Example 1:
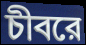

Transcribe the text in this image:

চীবরে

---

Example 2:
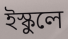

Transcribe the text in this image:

ইস্কুলে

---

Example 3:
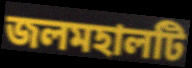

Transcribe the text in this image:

জলমহালটি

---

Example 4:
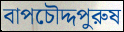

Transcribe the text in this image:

বাপচৌদ্দপুরুষ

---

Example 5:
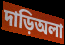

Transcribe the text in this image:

দাড়িঅলা